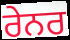
ਰੇਨਰ